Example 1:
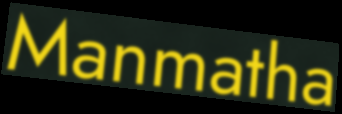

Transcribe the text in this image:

Manmatha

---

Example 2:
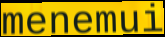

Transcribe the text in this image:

menemui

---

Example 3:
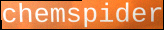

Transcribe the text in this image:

chemspider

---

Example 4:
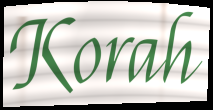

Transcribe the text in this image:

Korah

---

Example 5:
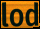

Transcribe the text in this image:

lod